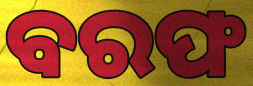
ବରଫ